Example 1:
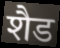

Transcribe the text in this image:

शैड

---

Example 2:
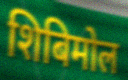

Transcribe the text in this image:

शिबिमोल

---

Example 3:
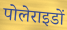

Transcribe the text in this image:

पोलेराइडों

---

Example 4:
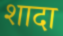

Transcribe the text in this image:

शादा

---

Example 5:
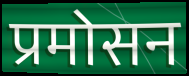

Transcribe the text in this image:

प्रमोसन